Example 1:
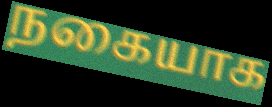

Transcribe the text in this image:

நகையாக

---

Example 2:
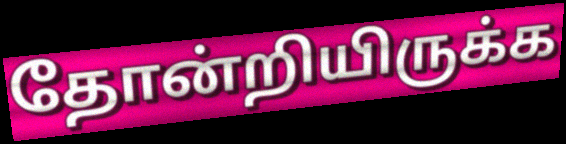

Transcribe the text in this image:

தோன்றியிருக்க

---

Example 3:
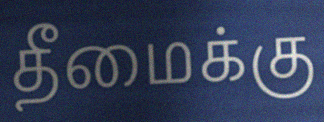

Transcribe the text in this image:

தீமைக்கு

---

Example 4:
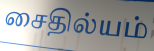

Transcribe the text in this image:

சைதில்யம்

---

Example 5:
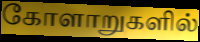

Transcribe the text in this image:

கோளாறுகளில்